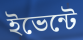
ইভেন্টে